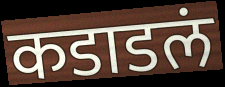
कडाडलं